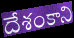
దేశంకాని